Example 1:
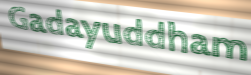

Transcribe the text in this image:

Gadayuddham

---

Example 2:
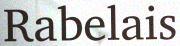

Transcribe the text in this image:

Rabelais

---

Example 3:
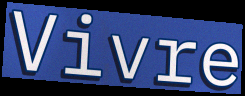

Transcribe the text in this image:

Vivre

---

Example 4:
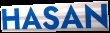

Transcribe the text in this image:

HASAN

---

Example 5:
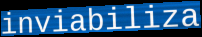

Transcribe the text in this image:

inviabiliza